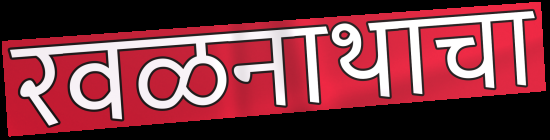
रवळनाथाचा